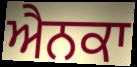
ਐਨਕਾ